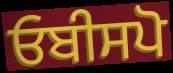
ਓਬੀਸਪੋ